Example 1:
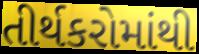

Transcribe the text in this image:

તીર્થકરોમાંથી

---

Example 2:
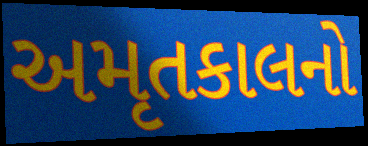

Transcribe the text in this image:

અમૃતકાલનો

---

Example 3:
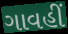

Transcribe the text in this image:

ગાવહીં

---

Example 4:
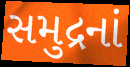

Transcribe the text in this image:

સમુદ્રનાં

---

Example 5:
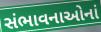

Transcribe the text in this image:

સંભાવનાઓનાં